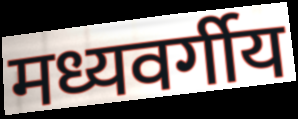
मध्यवर्गीय